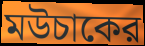
মউচাকের